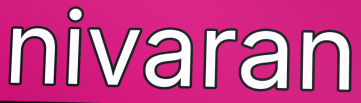
nivaran